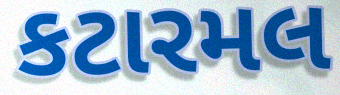
કટારમલ